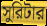
সুরিটার